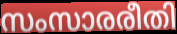
സംസാരരീതി